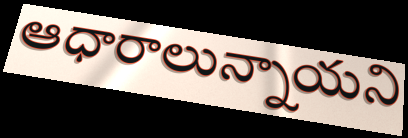
ఆధారాలున్నాయని